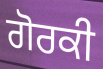
ਗੋਰਕੀ